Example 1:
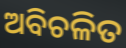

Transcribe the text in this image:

ଅବିଚଳିତ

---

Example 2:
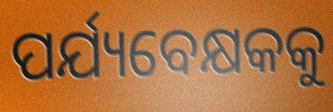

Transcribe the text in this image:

ପର୍ଯ୍ୟବେକ୍ଷକକୁ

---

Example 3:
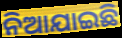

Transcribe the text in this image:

ନିଆଯାଇଛି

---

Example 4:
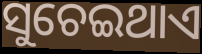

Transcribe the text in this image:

ସୁଚେଇଥାଏ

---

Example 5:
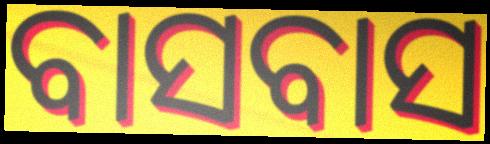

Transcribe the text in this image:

ବାସବାସ